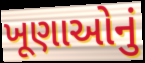
ખૂણાઓનું